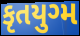
કૃતયુગ્મ